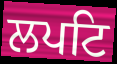
ਲਪਟਿ